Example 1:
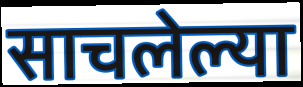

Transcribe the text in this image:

साचलेल्या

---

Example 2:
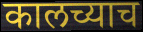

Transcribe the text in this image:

कालच्याच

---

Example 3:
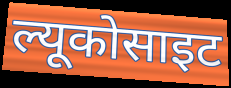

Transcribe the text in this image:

ल्यूकोसाइट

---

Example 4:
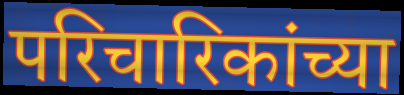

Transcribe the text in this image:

परिचारिकांच्या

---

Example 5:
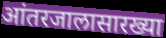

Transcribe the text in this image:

आंतरजालासारख्या